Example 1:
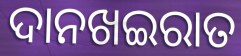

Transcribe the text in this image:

ଦାନଖଇରାତ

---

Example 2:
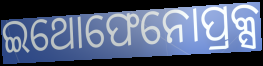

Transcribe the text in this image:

ଇଥୋଫେନୋପ୍ରକ୍ସ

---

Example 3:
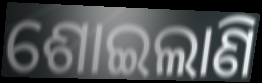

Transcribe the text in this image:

ଶୋଇଲାଣି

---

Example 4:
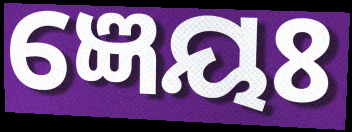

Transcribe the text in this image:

ଜ୍ଞେୟଃ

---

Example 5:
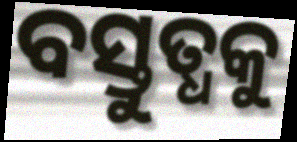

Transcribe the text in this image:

ବସ୍ତୁତ୍ଧକୁ